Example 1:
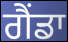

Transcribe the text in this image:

ਗੈਂਡਾ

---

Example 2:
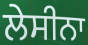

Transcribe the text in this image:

ਲੇਸੀਨਾ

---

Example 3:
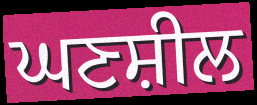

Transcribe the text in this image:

ਘਣਸ਼ੀਲ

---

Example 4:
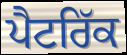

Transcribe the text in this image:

ਪੈਟਰਿੱਕ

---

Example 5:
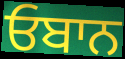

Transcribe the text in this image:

ਓਬਾਨ